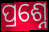
ପ୍ରଶ୍ନେ